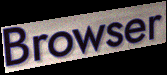
Browser